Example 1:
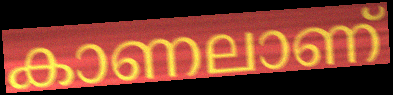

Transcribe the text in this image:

കാണലാണ്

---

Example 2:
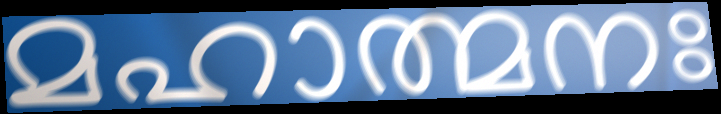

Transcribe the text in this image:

മഹാത്മനഃ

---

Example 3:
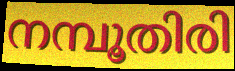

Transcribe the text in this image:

നമ്പൂതിരി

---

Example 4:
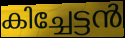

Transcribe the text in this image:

കിച്ചേട്ടൻ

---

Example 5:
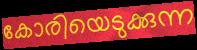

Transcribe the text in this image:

കോരിയെടുക്കുന്ന